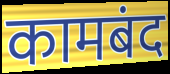
कामबंद